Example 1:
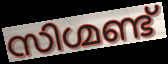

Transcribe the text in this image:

സിഗ്മണ്ട്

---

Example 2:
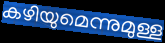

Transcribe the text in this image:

കഴിയുമെന്നുമുള്ള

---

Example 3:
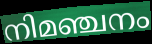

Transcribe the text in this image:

നിമഞ്ചനം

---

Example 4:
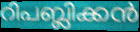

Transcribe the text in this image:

റിപബ്ലിക്കൻ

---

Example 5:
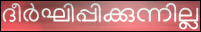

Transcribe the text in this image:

ദീർഘിപ്പിക്കുന്നില്ല